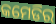
କମେଡିର